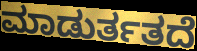
ಮಾಡುರ್ತತದೆ